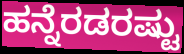
ಹನ್ನೆರಡರಷ್ಟು